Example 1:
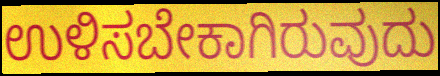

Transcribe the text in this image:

ಉಳಿಸಬೇಕಾಗಿರುವುದು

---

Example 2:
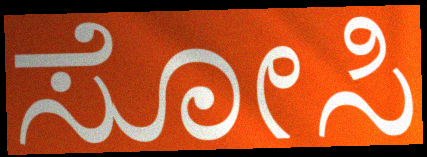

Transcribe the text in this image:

ಸೋಸಿ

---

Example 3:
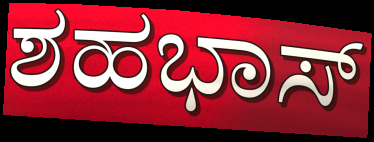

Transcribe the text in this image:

ಶಹಭಾಸ್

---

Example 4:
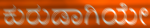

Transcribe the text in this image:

ಕುರುಡಾಗಿಯೇ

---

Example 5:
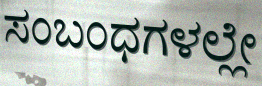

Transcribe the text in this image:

ಸಂಬಂಧಗಳಲ್ಲೇ